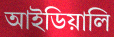
আইডিয়ালি